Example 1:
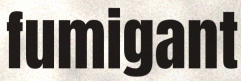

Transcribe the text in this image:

fumigant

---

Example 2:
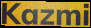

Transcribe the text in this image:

Kazmi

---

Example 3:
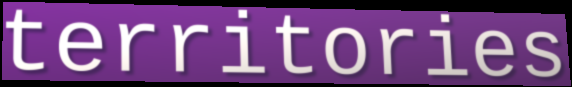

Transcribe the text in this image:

territories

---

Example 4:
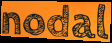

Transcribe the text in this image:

nodal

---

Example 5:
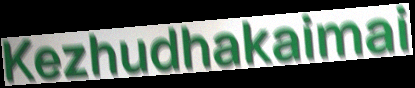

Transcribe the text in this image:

Kezhudhakaimai